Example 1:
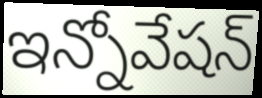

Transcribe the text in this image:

ఇన్నోవేషన్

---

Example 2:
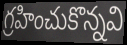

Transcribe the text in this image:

గ్రహించుకొన్నవి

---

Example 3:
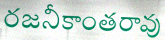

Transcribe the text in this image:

రజనీకాంతరావు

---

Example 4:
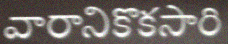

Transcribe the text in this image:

వారానికొకసారి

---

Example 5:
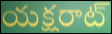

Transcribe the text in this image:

యక్షరాట్